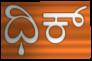
ಧಿಕ್